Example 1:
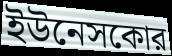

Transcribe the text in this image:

ইউনেসকোর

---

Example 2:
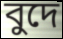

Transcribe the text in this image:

বুদে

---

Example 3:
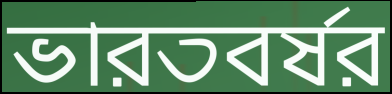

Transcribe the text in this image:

ভারতবর্ষর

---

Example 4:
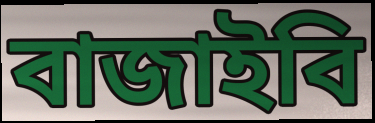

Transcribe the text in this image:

বাজাইবি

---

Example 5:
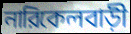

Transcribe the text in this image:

নারিকেলবাড়ী